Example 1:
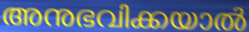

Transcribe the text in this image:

അനുഭവിക്കയാൽ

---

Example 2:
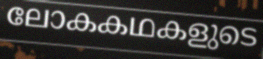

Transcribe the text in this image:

ലോകകഥകളുടെ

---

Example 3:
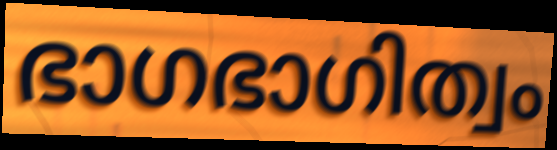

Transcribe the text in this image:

ഭാഗഭാഗിത്വം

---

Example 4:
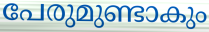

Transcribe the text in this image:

പേരുമുണ്ടാകും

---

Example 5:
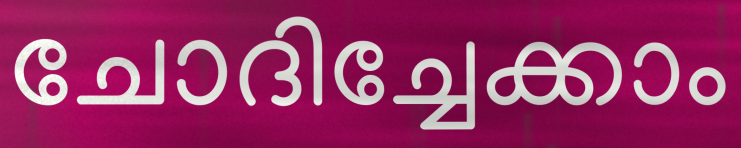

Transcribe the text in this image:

ചോദിച്ചേക്കാം